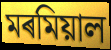
মৰমিয়াল